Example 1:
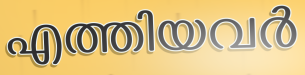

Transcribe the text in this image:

എത്തിയവർ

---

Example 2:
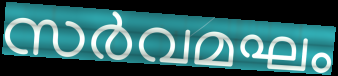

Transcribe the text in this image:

സർവമഘം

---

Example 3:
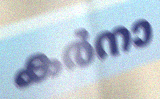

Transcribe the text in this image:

കർനാ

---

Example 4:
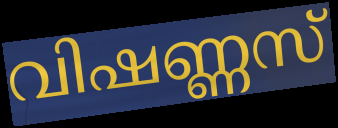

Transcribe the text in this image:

വിഷണ്ണസ്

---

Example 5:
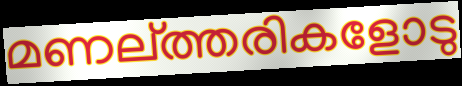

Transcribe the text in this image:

മണല്ത്തരികളോടു